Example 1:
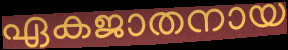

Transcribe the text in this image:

ഏകജാതനായ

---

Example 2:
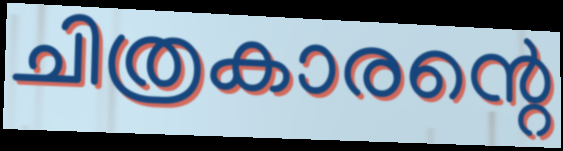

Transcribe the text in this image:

ചിത്രകാരന്റെ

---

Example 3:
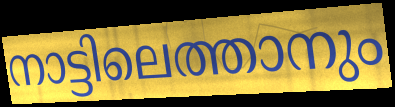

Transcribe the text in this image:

നാട്ടിലെത്താനും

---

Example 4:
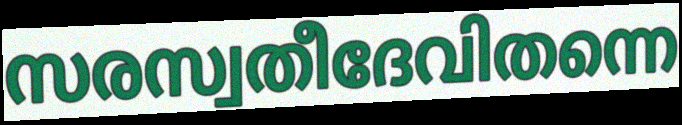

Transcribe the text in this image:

സരസ്വതീദേവിതന്നെ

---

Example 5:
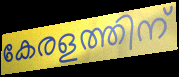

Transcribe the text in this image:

കേരളത്തിന്